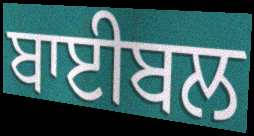
ਬਾਈਬਲ